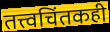
तत्त्वचिंतकही